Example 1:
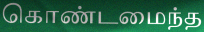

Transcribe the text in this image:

கொண்டமைந்த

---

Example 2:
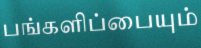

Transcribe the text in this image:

பங்களிப்பையும்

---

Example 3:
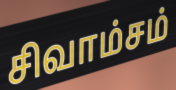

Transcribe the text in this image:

சிவாம்சம்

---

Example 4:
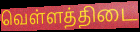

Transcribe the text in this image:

வெள்ளத்திடை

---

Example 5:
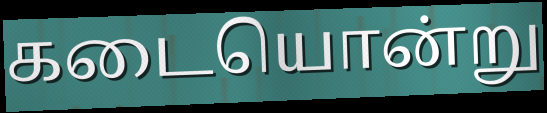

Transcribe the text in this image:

கடையொன்று